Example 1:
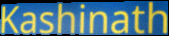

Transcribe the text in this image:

Kashinath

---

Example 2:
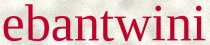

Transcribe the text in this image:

ebantwini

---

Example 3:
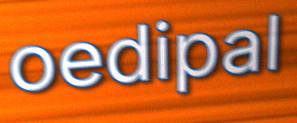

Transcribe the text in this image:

oedipal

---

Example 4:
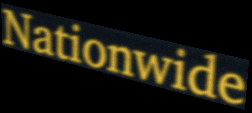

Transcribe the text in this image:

Nationwide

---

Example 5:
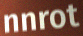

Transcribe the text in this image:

nnrot